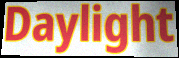
Daylight